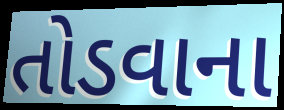
તોડવાના